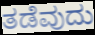
ತಡೆವುದು